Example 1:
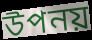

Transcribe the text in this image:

উপনয়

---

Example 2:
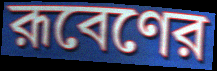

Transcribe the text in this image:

রূবেণের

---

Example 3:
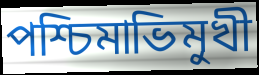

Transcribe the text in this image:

পশ্চিমাভিমুখী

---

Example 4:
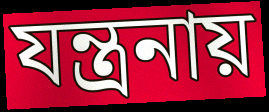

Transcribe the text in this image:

যন্ত্রনায়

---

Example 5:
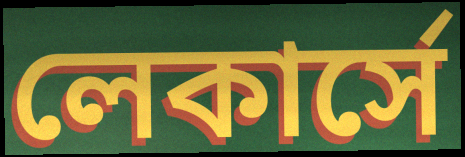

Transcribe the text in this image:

লেকার্সে